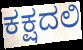
ಕಕ್ಷದಲಿ